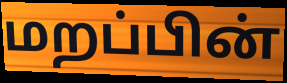
மறப்பின்